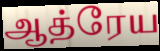
ஆத்ரேய